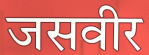
जसवीर